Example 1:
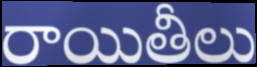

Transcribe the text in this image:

రాయితీలు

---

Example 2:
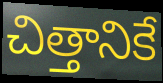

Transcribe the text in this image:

చిత్తానికే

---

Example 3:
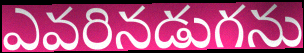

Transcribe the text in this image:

ఎవరినడుగను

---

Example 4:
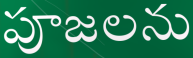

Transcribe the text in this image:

పూజలను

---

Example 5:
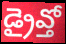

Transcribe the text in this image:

డ్రైవ్తో